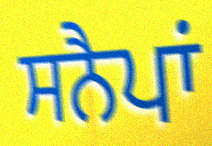
ਸਨੈਪਾਂ